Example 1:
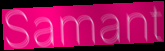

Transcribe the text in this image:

Samant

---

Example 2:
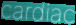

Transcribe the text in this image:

cardiac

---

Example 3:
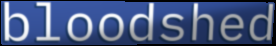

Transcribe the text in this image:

bloodshed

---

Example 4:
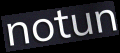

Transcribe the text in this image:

notun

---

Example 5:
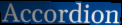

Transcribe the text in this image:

Accordion